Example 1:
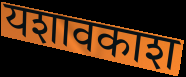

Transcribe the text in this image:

यशावकाश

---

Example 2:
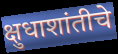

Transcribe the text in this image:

क्षुधाशांतीचे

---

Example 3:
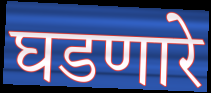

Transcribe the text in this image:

घडणारे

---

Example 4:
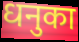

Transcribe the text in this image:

धनुका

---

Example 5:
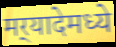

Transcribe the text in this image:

मर्यादेमध्ये